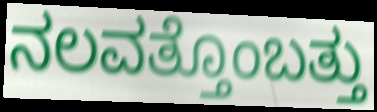
ನಲವತ್ತೊಂಬತ್ತು